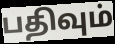
பதிவும்